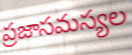
ప్రజాసమస్యల